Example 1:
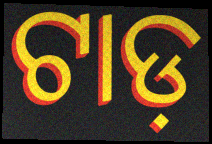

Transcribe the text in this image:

ଟାଡ଼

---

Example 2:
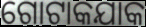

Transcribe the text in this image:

ଗୋଟାକଯାକ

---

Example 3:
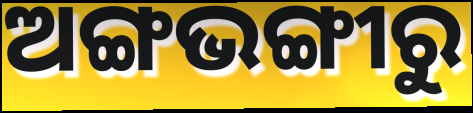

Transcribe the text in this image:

ଅଙ୍ଗଭଙ୍ଗୀରୁ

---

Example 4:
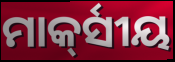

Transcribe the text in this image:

ମାର୍କ୍‍ସୀୟ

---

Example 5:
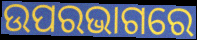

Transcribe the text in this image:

ଉପରଭାଗରେ